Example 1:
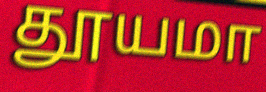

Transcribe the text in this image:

தூயமா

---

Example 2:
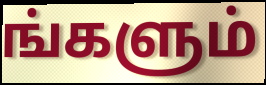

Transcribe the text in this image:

ங்களும்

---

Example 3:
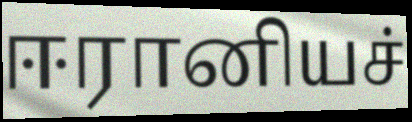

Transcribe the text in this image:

ஈரானியச்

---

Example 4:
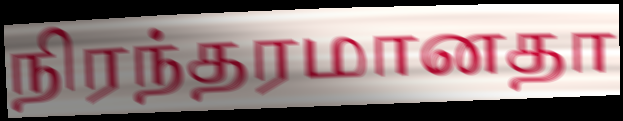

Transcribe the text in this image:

நிரந்தரமானதா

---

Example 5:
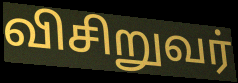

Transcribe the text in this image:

விசிறுவர்